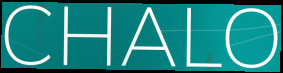
CHALO